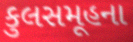
કુલસમૂહના